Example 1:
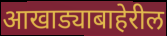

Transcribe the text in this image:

आखाड्याबाहेरील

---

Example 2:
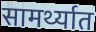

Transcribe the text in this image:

सामर्थ्यात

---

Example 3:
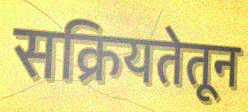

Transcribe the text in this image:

सक्रियतेतून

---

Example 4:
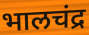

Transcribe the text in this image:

भालचंद्र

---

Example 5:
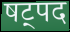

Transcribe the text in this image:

षट्पद